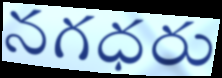
నగధరు